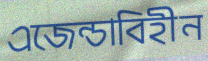
এজেন্ডাবিহীন